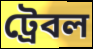
ট্রেবল